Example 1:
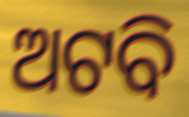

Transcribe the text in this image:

ଅଟବି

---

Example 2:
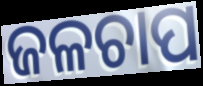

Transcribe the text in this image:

ଜଳଚାପ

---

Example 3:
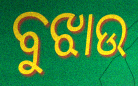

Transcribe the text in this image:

ବୁଝାଉ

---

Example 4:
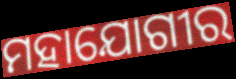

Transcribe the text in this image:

ମହାଯୋଗୀର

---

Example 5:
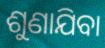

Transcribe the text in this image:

ଶୁଣାଯିବା